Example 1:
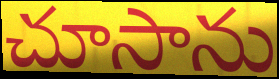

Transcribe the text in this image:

చూసాను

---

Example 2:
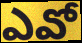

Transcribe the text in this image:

ఎవో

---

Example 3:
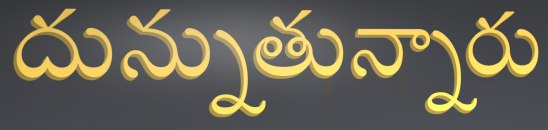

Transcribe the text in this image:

దున్నుతున్నారు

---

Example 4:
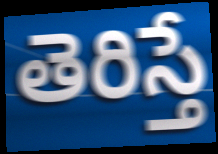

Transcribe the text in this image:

తెరిస్తే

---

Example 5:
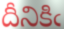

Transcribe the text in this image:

దీనికిఁ